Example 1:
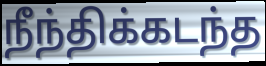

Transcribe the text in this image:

நீந்திக்கடந்த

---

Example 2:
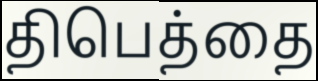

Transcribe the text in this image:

திபெத்தை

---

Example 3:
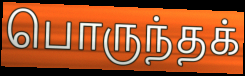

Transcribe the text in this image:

பொருந்தக்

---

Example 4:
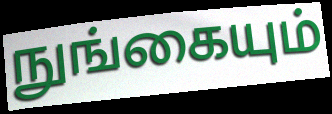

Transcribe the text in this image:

நுங்கையும்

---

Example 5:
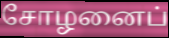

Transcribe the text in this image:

சோழனைப்